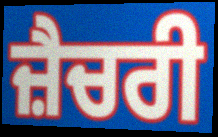
ਜ਼ੈਚਰੀ